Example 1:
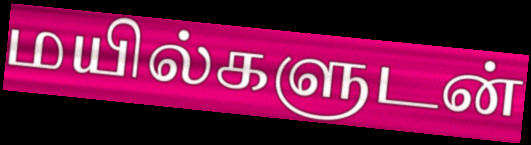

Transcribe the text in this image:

மயில்களுடன்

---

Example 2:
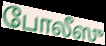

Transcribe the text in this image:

போலீஸு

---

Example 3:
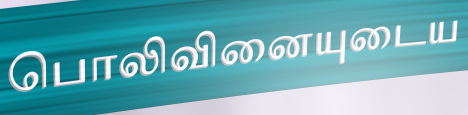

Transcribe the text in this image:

பொலிவினையுடைய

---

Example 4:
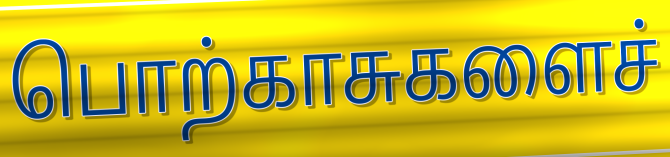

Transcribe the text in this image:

பொற்காசுகளைச்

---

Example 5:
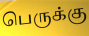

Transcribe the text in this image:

பெருக்கு